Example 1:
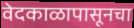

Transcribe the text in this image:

वेदकाळापासूनचा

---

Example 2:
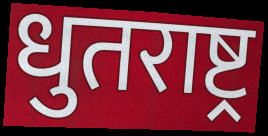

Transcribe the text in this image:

धुतराष्ट्र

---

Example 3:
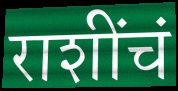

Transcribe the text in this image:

राशींचं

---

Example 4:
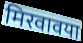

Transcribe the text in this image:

मिरवावया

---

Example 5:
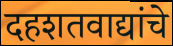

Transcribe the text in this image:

दहशतवाद्यांचे